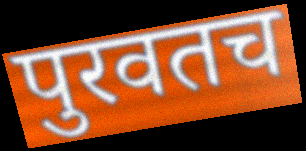
पुरवतच